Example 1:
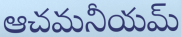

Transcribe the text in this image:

ఆచమనీయమ్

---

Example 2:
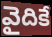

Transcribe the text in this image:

వైదికే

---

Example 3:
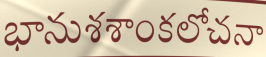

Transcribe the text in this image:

భానుశశాంకలోచనా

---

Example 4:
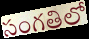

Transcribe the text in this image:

సంగతిలో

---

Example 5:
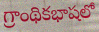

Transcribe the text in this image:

గ్రాంథికభాషలో